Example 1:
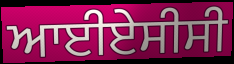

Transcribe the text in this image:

ਆਈਏਸੀਸੀ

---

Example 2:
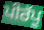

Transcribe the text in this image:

ਪੀਰੱਪੂ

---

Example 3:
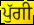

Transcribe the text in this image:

ਪੁੱਗੀ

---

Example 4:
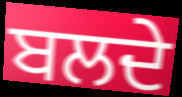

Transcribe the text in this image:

ਬਲਦੇ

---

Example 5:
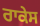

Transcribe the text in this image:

ਰਾਕੇਸ